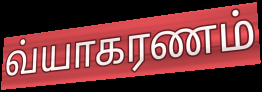
வ்யாகரணம்